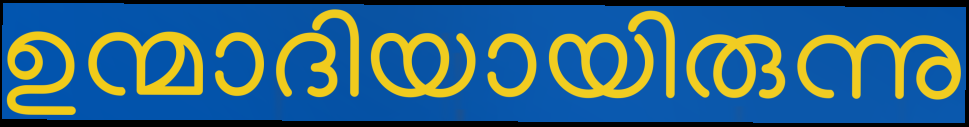
ഉന്മാദിയായിരുന്നു